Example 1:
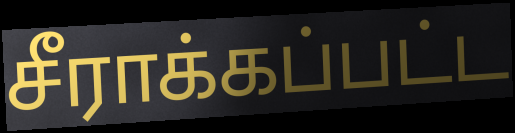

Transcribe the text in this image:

சீராக்கப்பட்ட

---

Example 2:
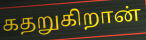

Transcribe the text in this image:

கதறுகிறான்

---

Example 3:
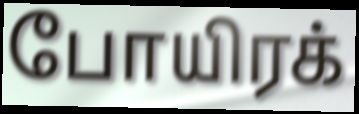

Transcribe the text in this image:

போயிரக்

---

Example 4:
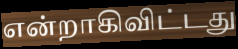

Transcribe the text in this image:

என்றாகிவிட்டது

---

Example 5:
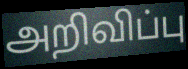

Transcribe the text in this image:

அறிவிப்பு